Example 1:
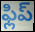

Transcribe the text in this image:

ఫ్లిప్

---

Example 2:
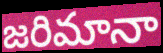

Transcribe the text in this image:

జరిమానా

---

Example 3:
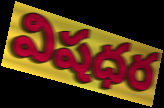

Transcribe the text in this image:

విషధర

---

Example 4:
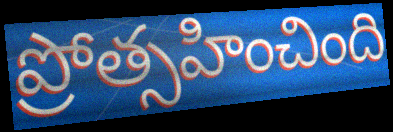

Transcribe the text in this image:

ప్రోత్సహించింది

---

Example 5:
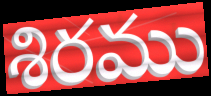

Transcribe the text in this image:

శిరము